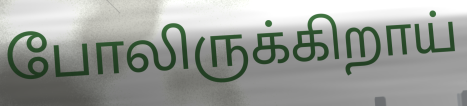
போலிருக்கிறாய்